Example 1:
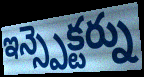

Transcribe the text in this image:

ఇన్స్పెక్టర్ను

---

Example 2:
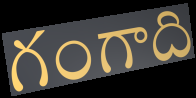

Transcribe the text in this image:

గంగాది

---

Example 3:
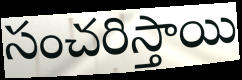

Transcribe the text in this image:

సంచరిస్తాయి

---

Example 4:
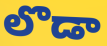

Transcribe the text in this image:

లొడా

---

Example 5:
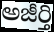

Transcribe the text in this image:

అజీర్తి